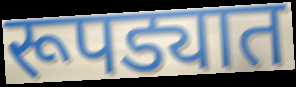
रूपड्यात